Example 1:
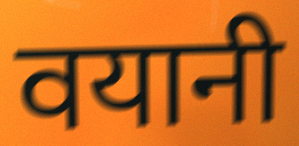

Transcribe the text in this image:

वयानी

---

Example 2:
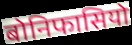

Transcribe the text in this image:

बोनिफासियो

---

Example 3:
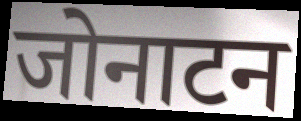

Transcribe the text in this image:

जोनाटन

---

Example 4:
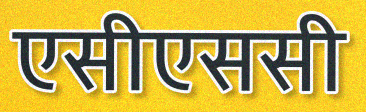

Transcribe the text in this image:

एसीएससी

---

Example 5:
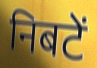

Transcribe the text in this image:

निबटें